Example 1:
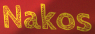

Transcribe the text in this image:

Nakos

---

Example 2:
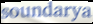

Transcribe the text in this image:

soundarya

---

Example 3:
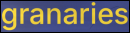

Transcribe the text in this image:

granaries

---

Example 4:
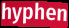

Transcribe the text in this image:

hyphen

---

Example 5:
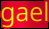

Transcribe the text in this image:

gael